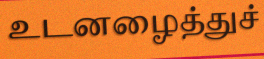
உடனழைத்துச்